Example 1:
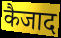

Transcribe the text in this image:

कैजाद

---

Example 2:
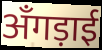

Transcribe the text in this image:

अँगड़ाई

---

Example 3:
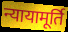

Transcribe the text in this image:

न्यायामूर्ति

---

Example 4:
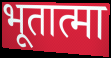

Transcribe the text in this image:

भूतात्मा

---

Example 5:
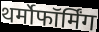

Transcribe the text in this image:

थर्मोफॉर्मिंग